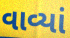
વાવ્યાં